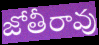
జోతీరావు